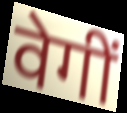
वेगीं